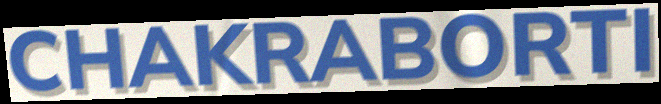
CHAKRABORTI